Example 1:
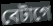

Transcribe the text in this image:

বেটাগে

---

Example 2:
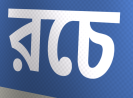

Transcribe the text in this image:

রচে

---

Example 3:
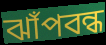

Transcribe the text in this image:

ঝাঁপবন্ধ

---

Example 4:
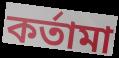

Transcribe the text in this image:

কর্তামা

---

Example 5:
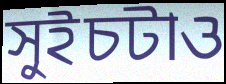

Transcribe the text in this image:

সুইচটাও